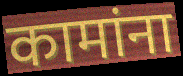
कामांना